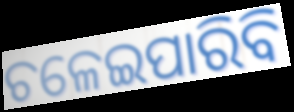
ଚଳେଇପାରିବି